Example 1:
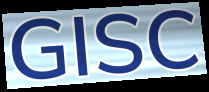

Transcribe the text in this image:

GISC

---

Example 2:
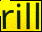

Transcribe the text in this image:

rill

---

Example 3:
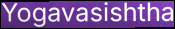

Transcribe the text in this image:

Yogavasishtha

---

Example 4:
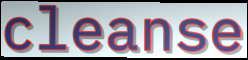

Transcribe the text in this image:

cleanse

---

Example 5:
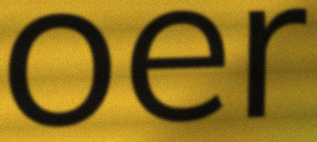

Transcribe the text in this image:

oer